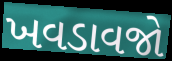
ખવડાવજો